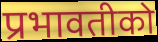
प्रभावतीको